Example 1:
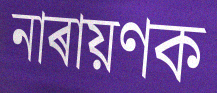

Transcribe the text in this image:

নাৰায়ণক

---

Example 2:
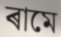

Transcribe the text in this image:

ৰামে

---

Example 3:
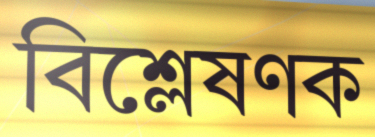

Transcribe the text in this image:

বিশ্লেষণক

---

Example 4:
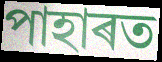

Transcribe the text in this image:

পাহাৰত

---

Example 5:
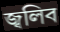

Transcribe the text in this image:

জ্বলিব